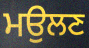
ਮਉਲਣ